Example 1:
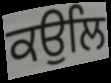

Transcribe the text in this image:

ਕਉਲਿ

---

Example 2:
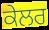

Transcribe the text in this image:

ਕੇਲਰ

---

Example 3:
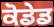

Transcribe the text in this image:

ਕੋਡੇਡ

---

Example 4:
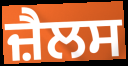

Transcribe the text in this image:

ਜ਼ੈਲਸ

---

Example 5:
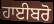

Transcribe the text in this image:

ਹਾਈਬਰੋ